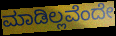
ಮಾಡಿಲ್ಲವೆಂದೇ